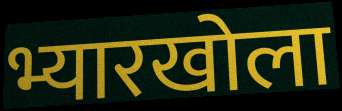
भ्यारखोला